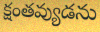
క్షంతవ్యుడను